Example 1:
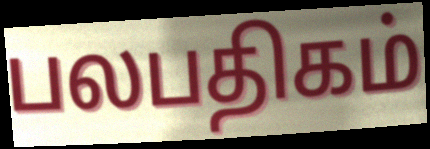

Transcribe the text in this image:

பலபதிகம்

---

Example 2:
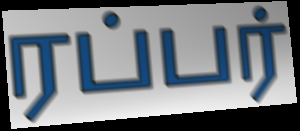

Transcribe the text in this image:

ரப்பர்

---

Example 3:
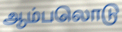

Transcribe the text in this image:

ஆம்பலொடு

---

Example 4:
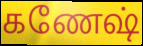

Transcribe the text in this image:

கணேஷ்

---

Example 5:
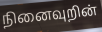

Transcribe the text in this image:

நினைவுறின்